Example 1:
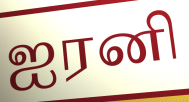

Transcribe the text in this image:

ஐரனி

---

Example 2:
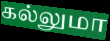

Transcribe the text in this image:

கல்லுமா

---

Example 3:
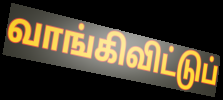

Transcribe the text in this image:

வாங்கிவிட்டுப்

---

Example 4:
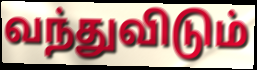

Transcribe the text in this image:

வந்துவிடும்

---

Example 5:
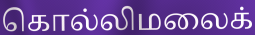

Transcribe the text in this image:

கொல்லிமலைக்